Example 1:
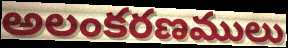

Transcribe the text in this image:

అలంకరణములు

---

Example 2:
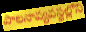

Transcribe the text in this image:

పాలనావ్యవస్థల్లోని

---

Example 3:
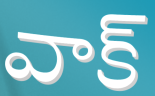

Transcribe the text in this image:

వాక్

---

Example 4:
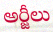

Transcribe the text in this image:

అర్జీలు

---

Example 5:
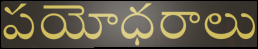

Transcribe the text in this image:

పయోధరాలు